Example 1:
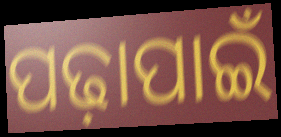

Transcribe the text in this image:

ପଢ଼ାପାଇଁ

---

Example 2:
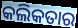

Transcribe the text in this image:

କଲିକତାର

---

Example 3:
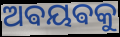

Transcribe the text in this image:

ଅଵୟଵକୁ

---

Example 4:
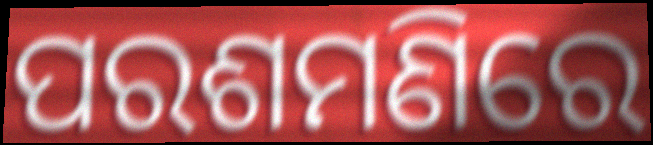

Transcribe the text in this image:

ପରଶମଣିରେ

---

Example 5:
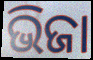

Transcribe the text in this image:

ଭିଜା